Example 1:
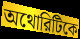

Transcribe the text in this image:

অথোরিটিকে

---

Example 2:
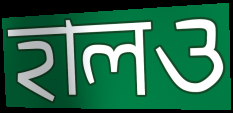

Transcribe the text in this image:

হালও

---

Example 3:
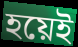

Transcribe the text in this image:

হয়েই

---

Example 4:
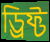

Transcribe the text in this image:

ড্রিফ্ট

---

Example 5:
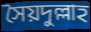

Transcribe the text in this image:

সৈয়দুল্লাহ